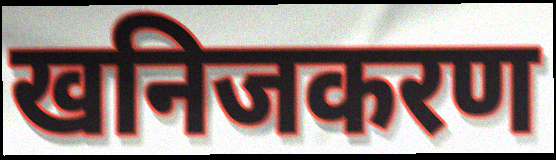
खनिजकरण